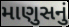
માણુસનું